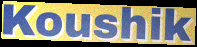
Koushik